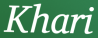
Khari